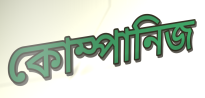
কোম্পানিজ